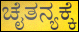
ಚೈತನ್ಯಕ್ಕೆ